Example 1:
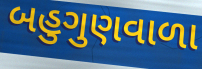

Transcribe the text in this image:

બહુગુણવાળા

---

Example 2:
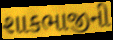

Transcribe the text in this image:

શાકભાજીની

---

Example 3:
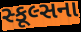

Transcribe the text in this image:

સ્કૂલ્સના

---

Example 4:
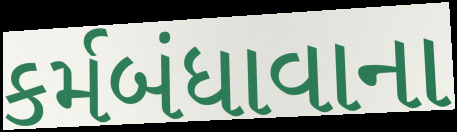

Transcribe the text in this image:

કર્મબંધાવાના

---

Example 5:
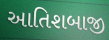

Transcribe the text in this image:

આતિશબાજી